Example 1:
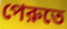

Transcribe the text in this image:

পেরুতে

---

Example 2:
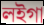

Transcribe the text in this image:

লইগা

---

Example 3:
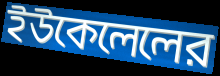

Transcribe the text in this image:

ইউকেলেলের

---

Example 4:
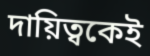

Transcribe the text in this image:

দায়িত্বকেই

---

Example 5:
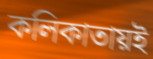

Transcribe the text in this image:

কলিকাতায়ই